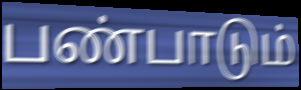
பண்பாடும்